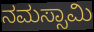
ನಮಸ್ಸಾಮಿ